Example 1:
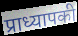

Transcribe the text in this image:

प्राध्यापकी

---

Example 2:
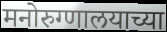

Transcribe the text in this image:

मनोरुग्णालयाच्या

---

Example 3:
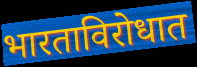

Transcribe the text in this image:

भारताविरोधात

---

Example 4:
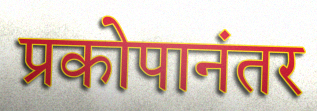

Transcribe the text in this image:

प्रकोपानंतर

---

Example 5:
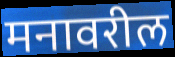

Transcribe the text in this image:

मनावरील